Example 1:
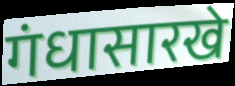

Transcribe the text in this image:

गंधासारखे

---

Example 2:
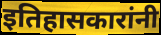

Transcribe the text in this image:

इतिहासकारांनी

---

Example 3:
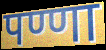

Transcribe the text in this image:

पण्णा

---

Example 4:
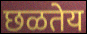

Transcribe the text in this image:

छळतेय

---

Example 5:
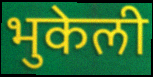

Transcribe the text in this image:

भुकेली